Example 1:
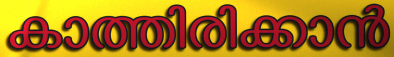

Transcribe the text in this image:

കാത്തിരിക്കാൻ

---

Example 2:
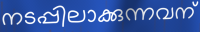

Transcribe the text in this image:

നടപ്പിലാക്കുന്നവന്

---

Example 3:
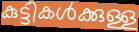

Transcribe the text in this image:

കുട്ടികൾക്കുള്ള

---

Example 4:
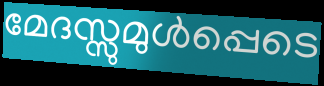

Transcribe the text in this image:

മേദസ്സുമുൾപ്പെടെ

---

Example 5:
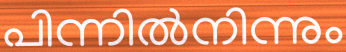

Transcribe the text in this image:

പിന്നിൽനിന്നും